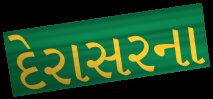
દેરાસરના